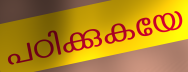
പഠിക്കുകയേ